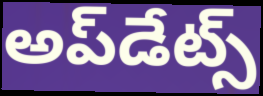
అప్‌డేట్స్